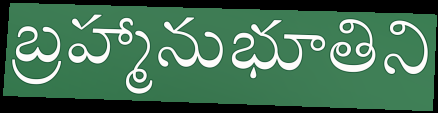
బ్రహ్మానుభూతిని